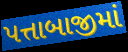
પત્તાબાજીમાં